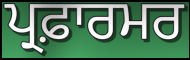
ਪ੍ਰਫ਼ਾਰਮਰ